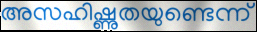
അസഹിഷ്ണുതയുണ്ടെന്ന്